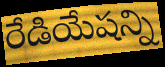
రేడియేషన్ని